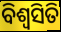
ବିଶ୍ଵସିତି